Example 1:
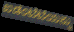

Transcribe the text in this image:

ಐಡೆಂಟಿಟಿಯನ್ನು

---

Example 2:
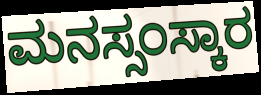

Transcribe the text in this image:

ಮನಸ್ಸಂಸ್ಕಾರ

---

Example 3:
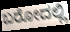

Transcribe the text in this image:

ಬರೋದಲ್ಲಿ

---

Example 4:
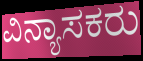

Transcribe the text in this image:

ವಿನ್ಯಾಸಕರು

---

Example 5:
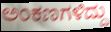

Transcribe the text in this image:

ಅಂಕಣಗಳಿದ್ದು